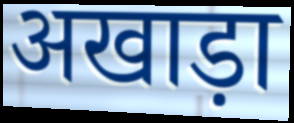
अखाड़ा